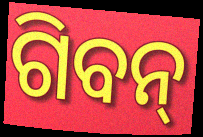
ଗିବନ୍